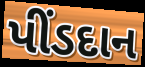
પીંડદાન